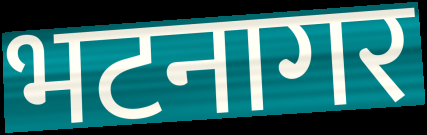
भटनागर